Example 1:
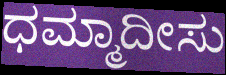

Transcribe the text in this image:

ಧಮ್ಮಾದೀಸು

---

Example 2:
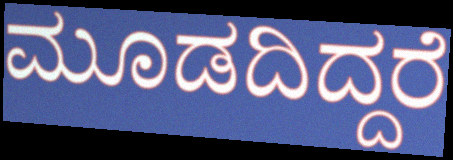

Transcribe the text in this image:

ಮೂಡದಿದ್ದರೆ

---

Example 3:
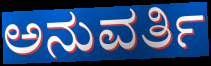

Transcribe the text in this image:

ಅನುವರ್ತಿ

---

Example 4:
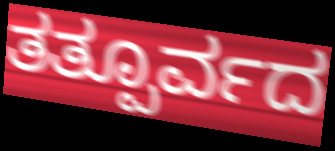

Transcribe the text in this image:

ತತ್ಪೂರ್ವದ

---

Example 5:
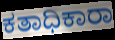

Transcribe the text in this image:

ಕತಾಧಿಕಾರಾ